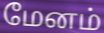
மேனம்